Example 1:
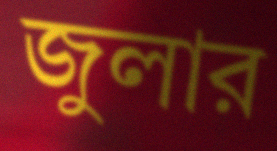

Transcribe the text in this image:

জুলার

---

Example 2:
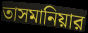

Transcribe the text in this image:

তাসমানিয়ার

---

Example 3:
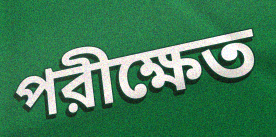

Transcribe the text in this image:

পরীক্ষেত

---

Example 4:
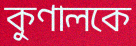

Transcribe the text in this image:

কুণালকে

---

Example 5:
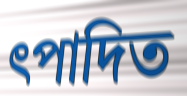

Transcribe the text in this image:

ৎপাদিত